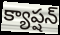
క్యాప్షన్